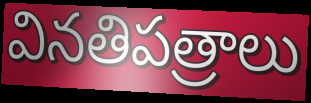
వినతిపత్రాలు